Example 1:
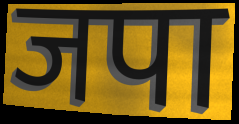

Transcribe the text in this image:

जपा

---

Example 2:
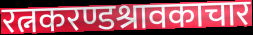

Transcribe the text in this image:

रत्नकरण्डश्रावकाचार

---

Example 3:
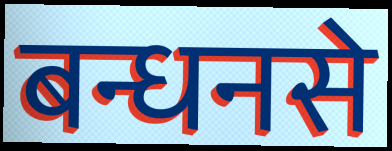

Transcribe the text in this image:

बन्धनसे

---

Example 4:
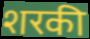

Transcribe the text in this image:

शरकी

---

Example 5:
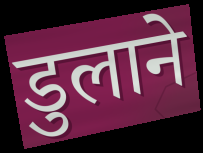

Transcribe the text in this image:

डुलाने